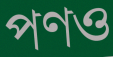
পণও